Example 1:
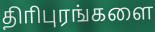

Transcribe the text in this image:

திரிபுரங்களை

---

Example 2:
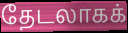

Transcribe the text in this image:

தேடலாகக்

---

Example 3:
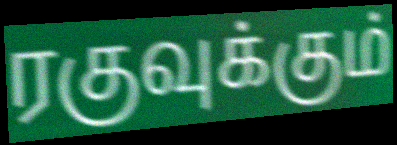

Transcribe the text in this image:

ரகுவுக்கும்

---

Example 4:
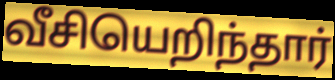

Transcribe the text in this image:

வீசியெறிந்தார்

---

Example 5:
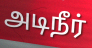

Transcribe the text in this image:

அடிநீர்